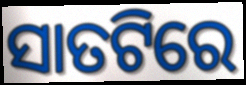
ସାତଟିରେ